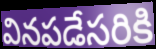
వినపడేసరికి